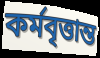
কর্মবৃত্তান্ত